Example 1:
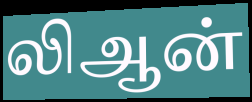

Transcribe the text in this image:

லிஆன்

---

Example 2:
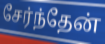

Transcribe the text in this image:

சேர்ந்தேன்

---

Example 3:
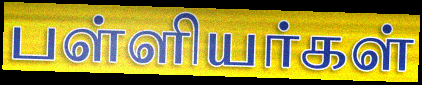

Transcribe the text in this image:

பள்ளியர்கள்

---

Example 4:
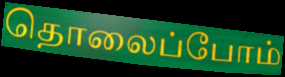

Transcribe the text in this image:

தொலைப்போம்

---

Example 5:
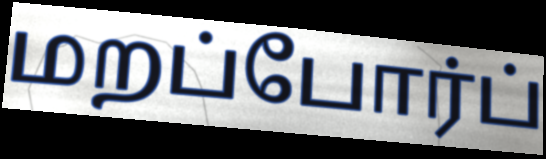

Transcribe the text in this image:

மறப்போர்ப்